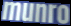
munro